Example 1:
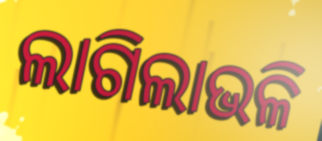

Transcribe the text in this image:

ଲାଗିଲାଭଳି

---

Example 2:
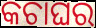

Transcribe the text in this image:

କଚାଘର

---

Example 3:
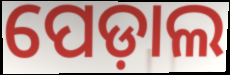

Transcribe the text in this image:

ପେଡ଼ାଲ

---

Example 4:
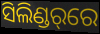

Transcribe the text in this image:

ସିଲିଣ୍ଡର୍‌ରେ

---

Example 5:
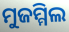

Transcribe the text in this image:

ମୁଜମ୍ମିଲ